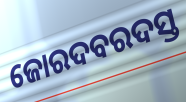
ଜୋରଦବରଦସ୍ତ